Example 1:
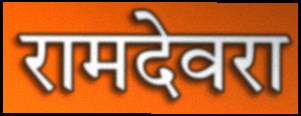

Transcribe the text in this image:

रामदेवरा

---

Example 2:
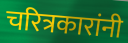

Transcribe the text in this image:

चरित्रकारांनी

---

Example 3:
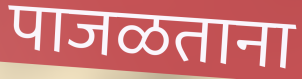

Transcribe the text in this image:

पाजळताना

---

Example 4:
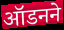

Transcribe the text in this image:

ऑडनने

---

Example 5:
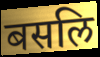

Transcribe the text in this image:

बसलि